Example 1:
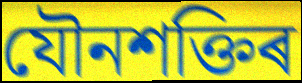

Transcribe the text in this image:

যৌনশক্তিৰ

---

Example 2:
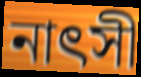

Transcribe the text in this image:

নাৎসী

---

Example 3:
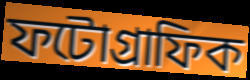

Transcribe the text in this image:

ফটোগ্ৰাফিক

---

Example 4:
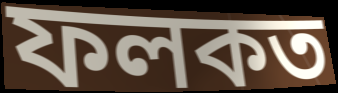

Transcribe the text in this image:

ফলকত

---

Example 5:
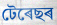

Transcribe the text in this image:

টেৰেছৰ